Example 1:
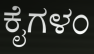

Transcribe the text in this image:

ಕೈಗಳಂ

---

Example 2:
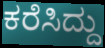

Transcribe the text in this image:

ಕರೆಸಿದ್ದು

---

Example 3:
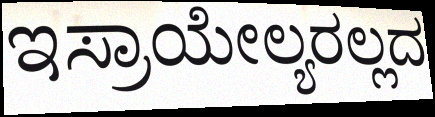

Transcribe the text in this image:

ಇಸ್ರಾಯೇಲ್ಯರಲ್ಲದ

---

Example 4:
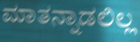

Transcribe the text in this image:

ಮಾತನ್ನಾಡಲಿಲ್ಲ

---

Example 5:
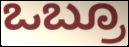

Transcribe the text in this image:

ಒಬ್ರೂ